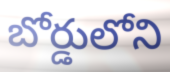
బోర్డులోని